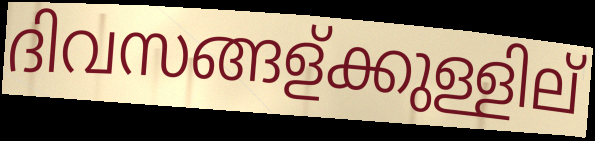
ദിവസങ്ങള്ക്കുള്ളില്